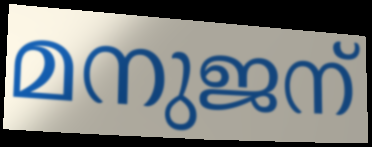
മനുജന്